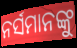
ନର୍ସମାନଙ୍କୁ